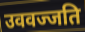
उववज्जति